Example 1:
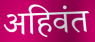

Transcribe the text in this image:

अहिवंत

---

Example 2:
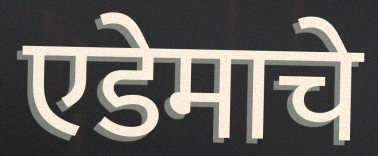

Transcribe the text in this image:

एडेमाचे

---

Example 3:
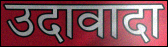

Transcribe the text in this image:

उदावादा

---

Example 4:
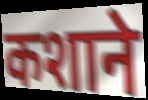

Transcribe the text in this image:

कशाने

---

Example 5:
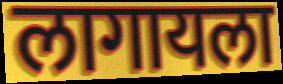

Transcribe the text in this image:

लागायला